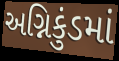
અગ્નિકુંડમાં